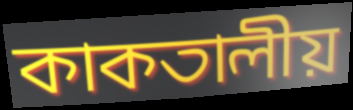
কাকতালীয়